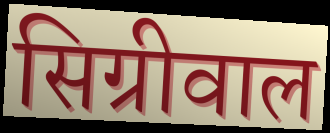
सिग्रीवाल